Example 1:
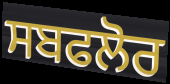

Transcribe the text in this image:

ਸਬਫਲੋਰ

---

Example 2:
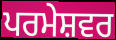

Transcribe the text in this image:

ਪਰਮੇਸ਼ਵਰ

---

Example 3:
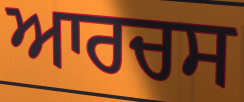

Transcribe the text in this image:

ਆਰਚਸ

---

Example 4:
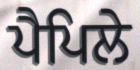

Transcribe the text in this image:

ਪੈਪਿਲੇ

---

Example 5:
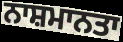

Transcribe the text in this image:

ਨਾਸ਼ਮਾਨਤਾ